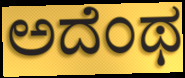
ಅದೆಂಥ